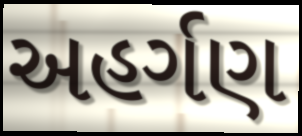
અહર્ગણ